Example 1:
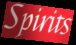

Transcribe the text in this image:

Spirits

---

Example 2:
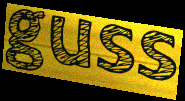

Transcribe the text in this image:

guss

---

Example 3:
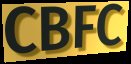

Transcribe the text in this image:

CBFC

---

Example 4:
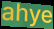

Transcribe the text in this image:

ahye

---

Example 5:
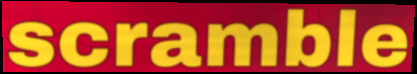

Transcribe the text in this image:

scramble